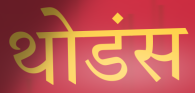
थोडंस